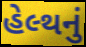
હેલ્થનું